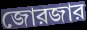
জোরজার